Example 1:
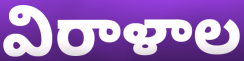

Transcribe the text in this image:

విరాళాల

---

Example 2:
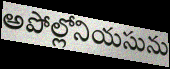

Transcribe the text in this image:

అపోల్లోనియసును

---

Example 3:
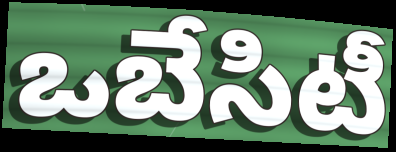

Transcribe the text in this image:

ఒబేసిటీ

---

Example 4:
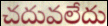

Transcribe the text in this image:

చదువలేదు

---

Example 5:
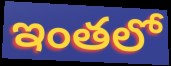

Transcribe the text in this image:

ఇంతలో